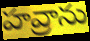
హవ్రాను